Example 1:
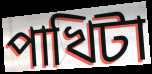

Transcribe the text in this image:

পাখিটা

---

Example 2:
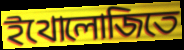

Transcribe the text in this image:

ইথোলোজিতে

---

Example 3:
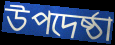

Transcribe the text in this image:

উপদেষ্ঠা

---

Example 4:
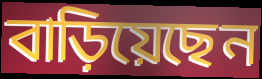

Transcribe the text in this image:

বাড়িয়েছেন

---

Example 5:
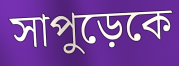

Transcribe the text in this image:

সাপুড়েকে